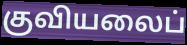
குவியலைப்